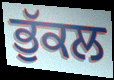
ਭੁੱਕਲ